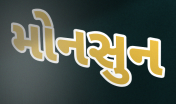
મોનસુન